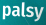
palsy